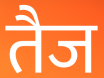
तैज